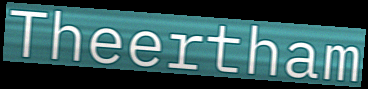
Theertham